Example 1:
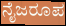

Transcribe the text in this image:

ನೈಜರೂಪ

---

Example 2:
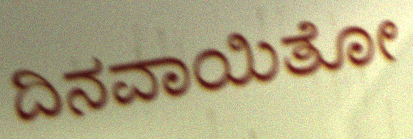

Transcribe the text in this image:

ದಿನವಾಯಿತೋ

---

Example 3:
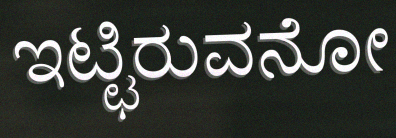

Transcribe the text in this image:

ಇಟ್ಟಿರುವನೋ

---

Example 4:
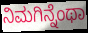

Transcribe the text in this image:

ನಿಮಗಿನ್ನೆಂಥಾ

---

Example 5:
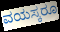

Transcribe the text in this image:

ವಯಸ್ಕರೂ